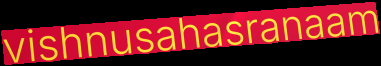
vishnusahasranaam